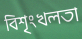
বিশৃংখলতা